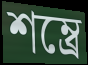
শম্ব্রে